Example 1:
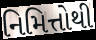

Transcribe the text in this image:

નિમિત્તોથી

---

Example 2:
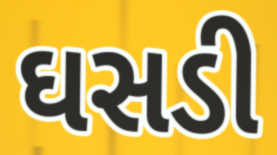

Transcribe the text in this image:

ઘસડી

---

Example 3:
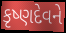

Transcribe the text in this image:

કૃષ્ણદેવને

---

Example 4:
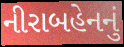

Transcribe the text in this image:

નીરાબહેનનું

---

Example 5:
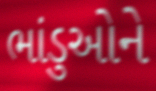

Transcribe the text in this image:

ભાંડુઓને